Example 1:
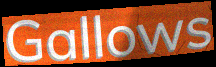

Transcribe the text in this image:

Gallows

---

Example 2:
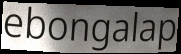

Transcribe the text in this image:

ebongalap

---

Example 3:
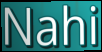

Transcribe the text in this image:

Nahi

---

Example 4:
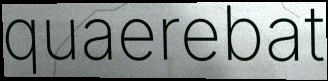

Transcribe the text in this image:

quaerebat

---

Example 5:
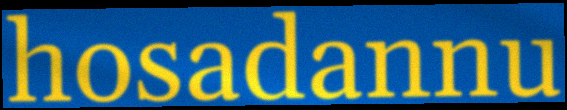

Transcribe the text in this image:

hosadannu